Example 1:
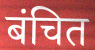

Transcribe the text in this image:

बंचित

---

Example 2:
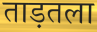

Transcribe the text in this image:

ताड़तला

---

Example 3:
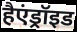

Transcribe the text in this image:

हैएंड्रॉइड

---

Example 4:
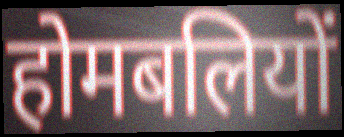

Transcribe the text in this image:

होमबलियों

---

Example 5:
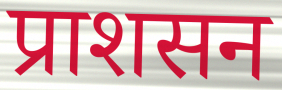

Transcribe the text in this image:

प्राशसन